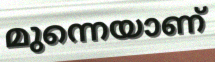
മുന്നെയാണ്